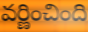
వర్ణించింది